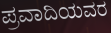
ಪ್ರವಾದಿಯವರ